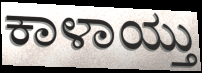
ಕಾಳಾಯ್ತು